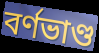
বর্ণভাণ্ড